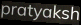
pratyaksh